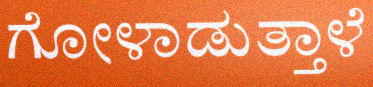
ಗೋಳಾಡುತ್ತಾಳೆ